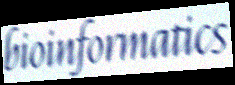
bioinformatics